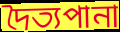
দৈত্যপানা